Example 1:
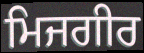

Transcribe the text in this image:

ਮਿਜਗੀਰ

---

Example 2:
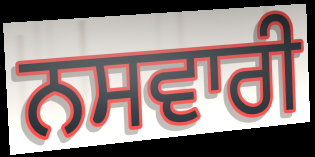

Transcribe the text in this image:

ਨਸਵਾਰੀ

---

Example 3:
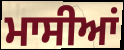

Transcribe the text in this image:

ਮਾਸੀਆਂ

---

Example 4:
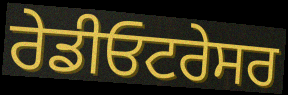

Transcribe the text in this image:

ਰੇਡੀਓਟਰੇਸਰ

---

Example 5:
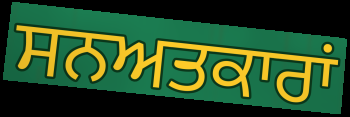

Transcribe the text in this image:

ਸਨਅਤਕਾਰਾਂ